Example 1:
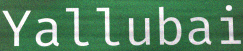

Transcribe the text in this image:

Yallubai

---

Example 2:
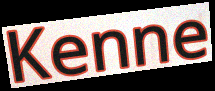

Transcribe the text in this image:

Kenne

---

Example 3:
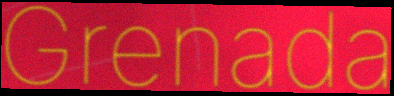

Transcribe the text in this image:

Grenada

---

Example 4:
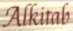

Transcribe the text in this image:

Alkitab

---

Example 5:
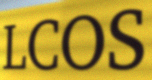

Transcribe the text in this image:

LCOS